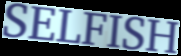
SELFISH